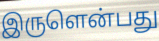
இருளென்பது